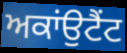
ਅਕਾਂਉਟੈਂਟ